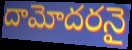
దామోదరనై